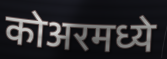
कोअरमध्ये